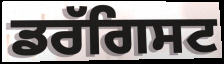
ਡਰੱਗਿਸਟ